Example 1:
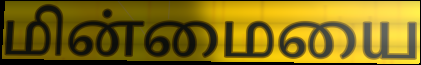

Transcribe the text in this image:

மின்மையை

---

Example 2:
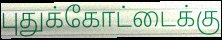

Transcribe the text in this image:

புதுக்கோட்டைக்கு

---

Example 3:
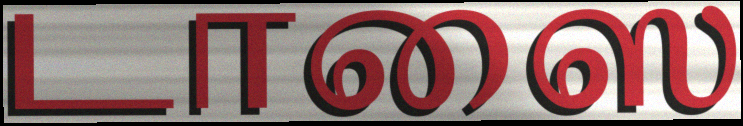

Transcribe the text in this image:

டாஸை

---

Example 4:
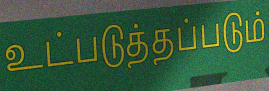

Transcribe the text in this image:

உட்படுத்தப்படும்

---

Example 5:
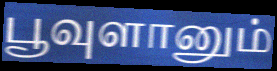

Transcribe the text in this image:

பூவுளானும்